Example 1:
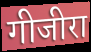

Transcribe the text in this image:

गीजीरा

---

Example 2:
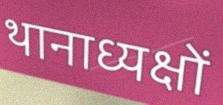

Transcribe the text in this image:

थानाध्यक्षों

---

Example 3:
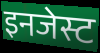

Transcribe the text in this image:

इनजेस्ट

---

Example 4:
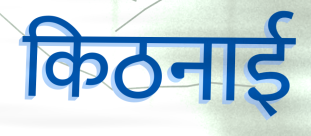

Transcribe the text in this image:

किठनाई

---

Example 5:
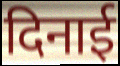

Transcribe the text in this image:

दिनाई